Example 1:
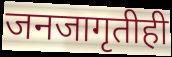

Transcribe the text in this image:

जनजागृतीही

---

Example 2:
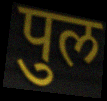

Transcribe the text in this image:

पुल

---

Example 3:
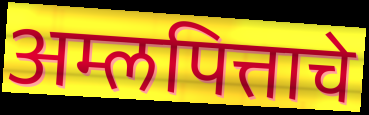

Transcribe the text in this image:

अम्लपित्ताचे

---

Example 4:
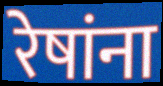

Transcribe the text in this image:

रेषांना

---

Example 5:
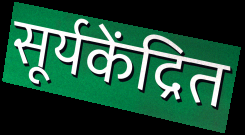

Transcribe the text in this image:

सूर्यकेंद्रित